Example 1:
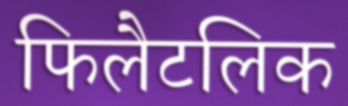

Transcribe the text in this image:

फिलैटलिक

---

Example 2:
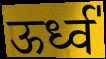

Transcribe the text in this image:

ऊर्ध्व॑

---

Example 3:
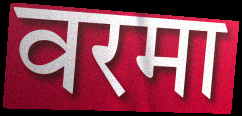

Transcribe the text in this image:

वरमा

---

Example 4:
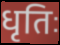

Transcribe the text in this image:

धृतिः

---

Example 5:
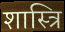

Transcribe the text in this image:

शास्त्रि